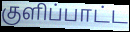
குளிப்பாட்ட